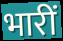
भारीं